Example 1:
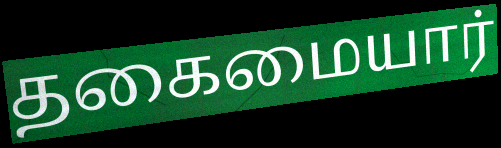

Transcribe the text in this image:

தகைமையார்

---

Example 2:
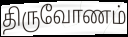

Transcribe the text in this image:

திருவோணம்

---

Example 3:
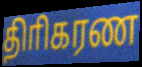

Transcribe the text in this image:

திரிகரண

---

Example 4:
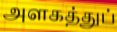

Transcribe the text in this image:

அளகத்துப்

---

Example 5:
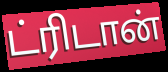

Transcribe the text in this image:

ட்ரிடான்